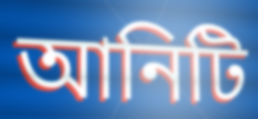
আনিটি